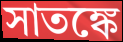
সাতঙ্কে